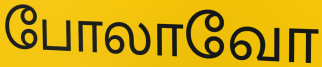
போலாவோ